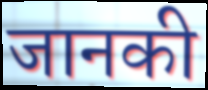
जानकी